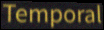
Temporal